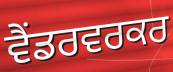
ਵੈਂਡਰਵਰਕਰ